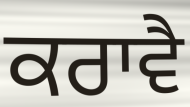
ਕਰਾਵੈ